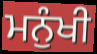
ਮਨੁੰਖੀ